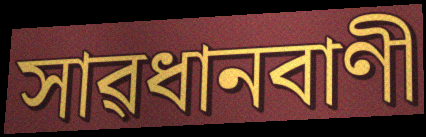
সাৱধানবাণী